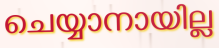
ചെയ്യാനായില്ല